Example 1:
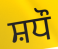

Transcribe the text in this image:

ਸ਼ਧੌ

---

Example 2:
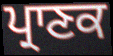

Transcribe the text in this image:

ਪ੍ਰਾਣਕ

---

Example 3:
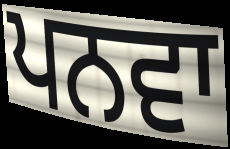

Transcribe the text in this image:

ਪਨਵਾ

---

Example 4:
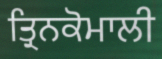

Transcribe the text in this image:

ਤ੍ਰਿਨਕੋਮਾਲੀ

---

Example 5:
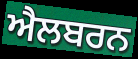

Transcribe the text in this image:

ਐਲਬਰਨ